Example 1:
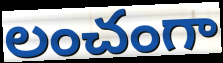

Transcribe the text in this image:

లంచంగా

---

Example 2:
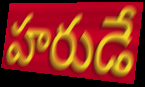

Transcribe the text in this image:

హరుడే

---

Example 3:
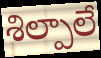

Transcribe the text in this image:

శిల్పాలే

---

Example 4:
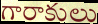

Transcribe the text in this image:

గారాకులు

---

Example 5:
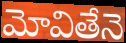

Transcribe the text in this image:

మోవితేనె